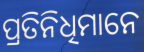
ପ୍ରତିନିଧିମାନେ